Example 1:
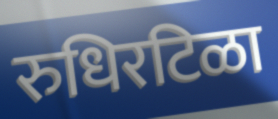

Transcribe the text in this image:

रुधिरटिळा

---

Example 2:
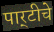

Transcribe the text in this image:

पार्टीचे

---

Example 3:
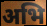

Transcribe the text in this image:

अभि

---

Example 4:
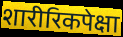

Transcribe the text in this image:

शारीरिकपेक्षा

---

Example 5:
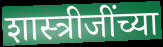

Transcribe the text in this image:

शास्त्रीजींच्या